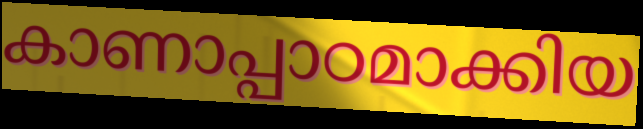
കാണാപ്പാഠമാക്കിയ